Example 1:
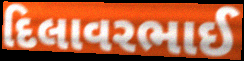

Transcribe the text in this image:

દિલાવરભાઈ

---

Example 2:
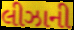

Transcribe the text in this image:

લીઝાની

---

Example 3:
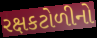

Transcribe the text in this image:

રક્ષકટોળીનો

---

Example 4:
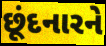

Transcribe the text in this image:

છૂંદનારને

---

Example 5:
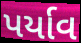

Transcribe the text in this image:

પર્યાવ